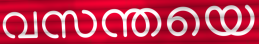
വസന്തയെ